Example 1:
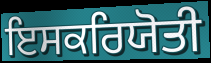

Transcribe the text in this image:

ਇਸਕਰਿਯੋਤੀ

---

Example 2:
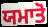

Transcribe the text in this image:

ਯਮਾਤੋ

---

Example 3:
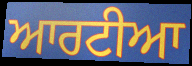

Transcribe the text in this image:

ਆਰਟੀਆ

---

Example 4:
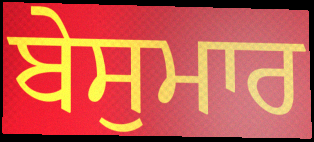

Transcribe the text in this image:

ਬੇਸੁਮਾਰ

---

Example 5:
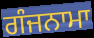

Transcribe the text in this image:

ਗੰਜਨਾਮਾ